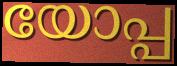
യോപ്പ